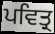
ਪਵਿਤ੍ਰ